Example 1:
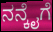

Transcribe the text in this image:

ನನ್ಕೈಗೆ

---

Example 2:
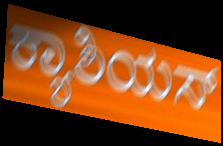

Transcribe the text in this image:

ಕ್ಯಾಶಿಯಸ್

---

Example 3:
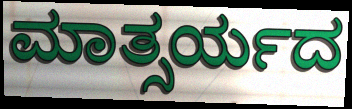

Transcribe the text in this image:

ಮಾತ್ಸರ್ಯದ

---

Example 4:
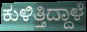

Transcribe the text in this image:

ಕುಳಿತ್ತಿದ್ದಾಳೆ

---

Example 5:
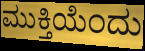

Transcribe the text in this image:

ಮುಕ್ತಿಯೆಂದು